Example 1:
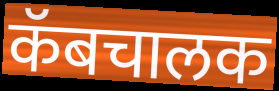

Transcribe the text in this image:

कॅबचालक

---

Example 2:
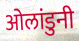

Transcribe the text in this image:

ओलांडुनी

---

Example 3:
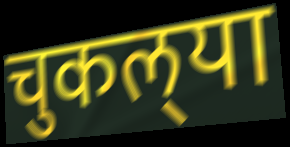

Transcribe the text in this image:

चुकल्या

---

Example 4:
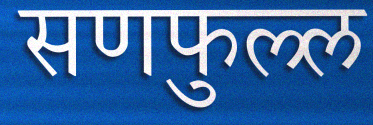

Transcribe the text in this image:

सणफुल्ल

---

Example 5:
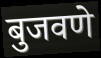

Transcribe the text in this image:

बुजवणे